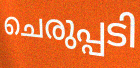
ചെരുപ്പടി